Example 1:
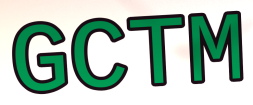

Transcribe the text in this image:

GCTM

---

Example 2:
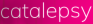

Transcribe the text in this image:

catalepsy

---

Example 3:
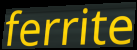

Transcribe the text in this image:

ferrite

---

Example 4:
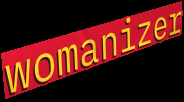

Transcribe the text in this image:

womanizer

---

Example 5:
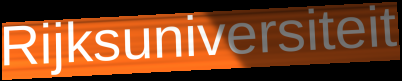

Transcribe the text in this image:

Rijksuniversiteit